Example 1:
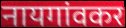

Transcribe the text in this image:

नायगांवकर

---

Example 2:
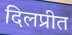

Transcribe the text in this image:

दिलप्रीत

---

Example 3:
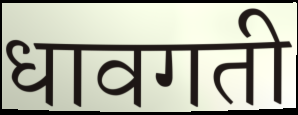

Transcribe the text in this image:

धावगती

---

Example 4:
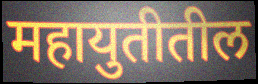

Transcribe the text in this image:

महायुतीतील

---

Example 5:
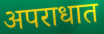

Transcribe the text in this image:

अपराधात